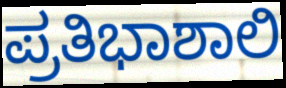
ಪ್ರತಿಭಾಶಾಲಿ